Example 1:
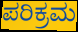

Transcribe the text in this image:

ಪರಿಕ್ರಮ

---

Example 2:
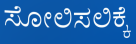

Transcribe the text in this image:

ಸೋಲಿಸಲಿಕ್ಕೆ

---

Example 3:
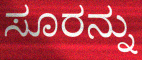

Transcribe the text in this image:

ಸೂರನ್ನು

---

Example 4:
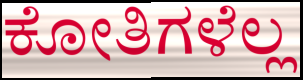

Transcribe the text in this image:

ಕೋತಿಗಳೆಲ್ಲ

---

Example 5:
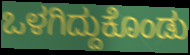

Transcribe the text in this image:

ಒಳಗಿದ್ದುಕೊಂಡು